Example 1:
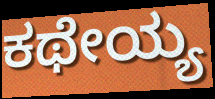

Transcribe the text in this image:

ಕಥೇಯ್ಯ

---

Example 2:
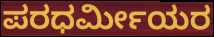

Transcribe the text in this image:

ಪರಧರ್ಮೀಯರ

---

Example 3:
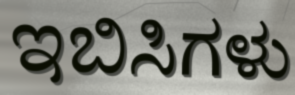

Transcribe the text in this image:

ಇಬಿಸಿಗಳು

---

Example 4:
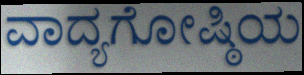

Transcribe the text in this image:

ವಾದ್ಯಗೋಷ್ಠಿಯ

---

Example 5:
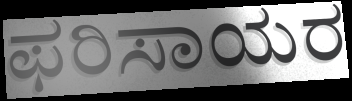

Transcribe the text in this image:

ಫರಿಸಾಯರ